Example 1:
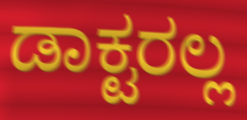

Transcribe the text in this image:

ಡಾಕ್ಟರಲ್ಲ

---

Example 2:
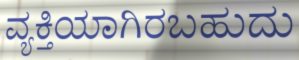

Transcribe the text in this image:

ವ್ಯಕ್ತಿಯಾಗಿರಬಹುದು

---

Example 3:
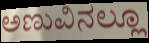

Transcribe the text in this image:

ಅಣುವಿನಲ್ಲೂ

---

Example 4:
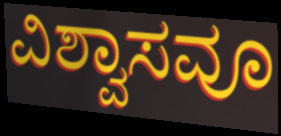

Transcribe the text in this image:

ವಿಶ್ವಾಸವೂ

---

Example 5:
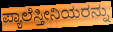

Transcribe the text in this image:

ಪ್ಯಾಲೆಸ್ತೀನಿಯರನ್ನು